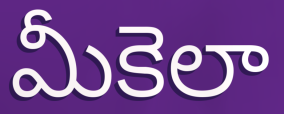
మీకెలా